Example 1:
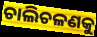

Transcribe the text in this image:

ଚାଲିଚଳଣକୁ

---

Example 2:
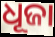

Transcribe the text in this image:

ଧୂଜା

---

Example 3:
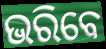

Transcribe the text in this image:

ଭରିବେ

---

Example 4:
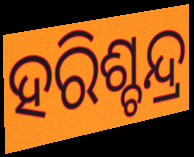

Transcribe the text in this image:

ହରିଶ୍ଚନ୍ଦ୍ର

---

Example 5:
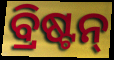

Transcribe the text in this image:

ବ୍ରିଷ୍ଟନ୍